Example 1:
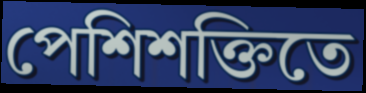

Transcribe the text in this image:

পেশিশক্তিতে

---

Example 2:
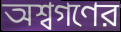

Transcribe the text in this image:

অশ্বগণের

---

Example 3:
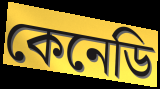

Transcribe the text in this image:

কেনেডি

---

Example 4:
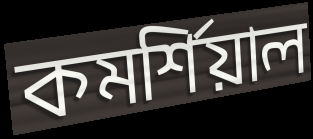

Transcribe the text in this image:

কমর্শিয়াল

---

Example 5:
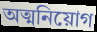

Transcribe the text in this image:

অত্মনিয়োগ